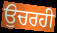
ਉਚਰਹੀ